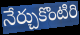
నేర్చుకొంటిరి